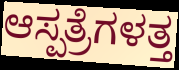
ಆಸ್ಪತ್ರೆಗಳತ್ತ